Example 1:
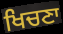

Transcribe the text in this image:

ਖਿਚਣਾ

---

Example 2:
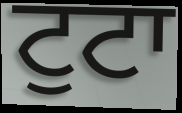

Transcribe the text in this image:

ਟੁਟਾ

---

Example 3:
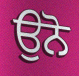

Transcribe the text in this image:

ਉਨੋ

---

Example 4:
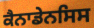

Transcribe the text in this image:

ਕੈਨਾਡੇਨਸਿਸ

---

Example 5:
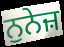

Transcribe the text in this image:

ਨੁਨੇਜ਼